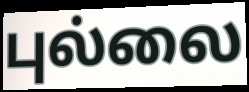
புல்லை